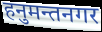
हनुमन्तनगर